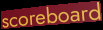
scoreboard